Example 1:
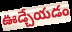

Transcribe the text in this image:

ఊడ్చేయడం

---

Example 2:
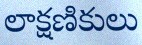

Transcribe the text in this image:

లాక్షణికులు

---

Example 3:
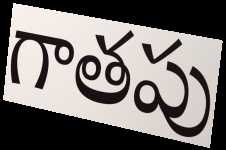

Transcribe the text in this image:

గాతపు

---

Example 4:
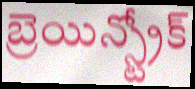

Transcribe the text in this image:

బ్రెయిన్స్ట్రోక్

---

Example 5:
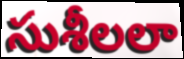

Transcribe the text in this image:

సుశీలలా